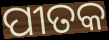
ପୀତକ